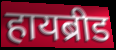
हायब्रीड